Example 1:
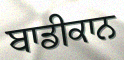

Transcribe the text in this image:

ਬਾਡੀਕਾਨ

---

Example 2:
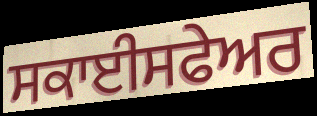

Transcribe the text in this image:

ਸਕਾਈਸਫੇਅਰ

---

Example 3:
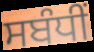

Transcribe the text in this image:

ਸਬੰਧੀਂ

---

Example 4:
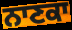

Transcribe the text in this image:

ਨਾਣਕਾ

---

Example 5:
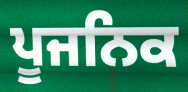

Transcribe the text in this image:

ਪੂਜਨਿਕ